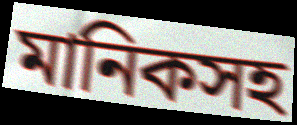
মানিকসহ